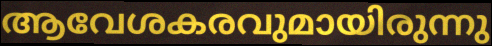
ആവേശകരവുമായിരുന്നു